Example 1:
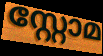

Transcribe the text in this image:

സ്റ്റോമ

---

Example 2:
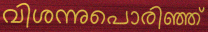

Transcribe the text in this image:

വിശന്നുപൊരിഞ്ഞ്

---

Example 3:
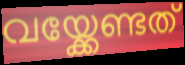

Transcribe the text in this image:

വയ്ക്കേണ്ടത്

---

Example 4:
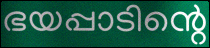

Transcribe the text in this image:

ഭയപ്പാടിന്റെ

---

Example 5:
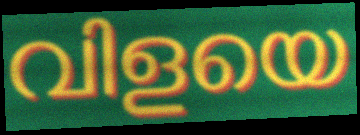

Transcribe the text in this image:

വിളയെ